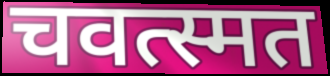
चवत्स्मत